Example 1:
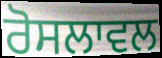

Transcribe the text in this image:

ਰੋਸਲਾਵਲ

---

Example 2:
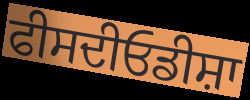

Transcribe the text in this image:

ਫੀਸਦੀਓਡੀਸ਼ਾ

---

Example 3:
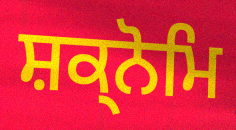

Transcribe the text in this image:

ਸ਼ਕ੍ਨੋਮਿ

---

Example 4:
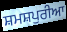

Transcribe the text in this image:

ਸ਼ਮਸ਼ਪੁਰੀਆ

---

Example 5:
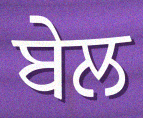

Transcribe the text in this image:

ਬੇਲ